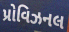
પ્રોવિઝનલ